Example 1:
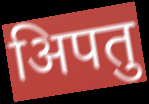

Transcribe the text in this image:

अिपतु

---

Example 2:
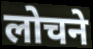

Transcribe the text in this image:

लोचने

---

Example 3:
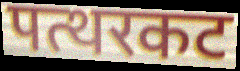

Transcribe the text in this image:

पत्थरकट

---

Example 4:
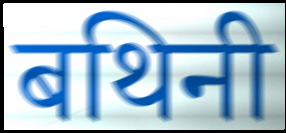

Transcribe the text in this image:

बथिनी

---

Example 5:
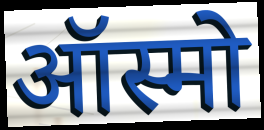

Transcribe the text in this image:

ऑस्मो